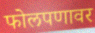
फोलपणावर